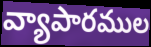
వ్యాపారముల